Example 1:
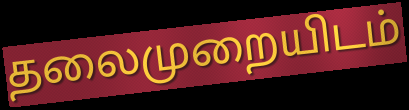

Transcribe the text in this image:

தலைமுறையிடம்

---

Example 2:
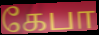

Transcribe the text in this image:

கேபா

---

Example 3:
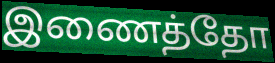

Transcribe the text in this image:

இணைத்தோ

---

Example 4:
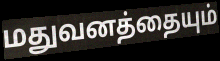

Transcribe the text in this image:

மதுவனத்தையும்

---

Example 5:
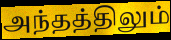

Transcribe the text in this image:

அந்தத்திலும்